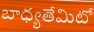
బాధ్యతేమిటో